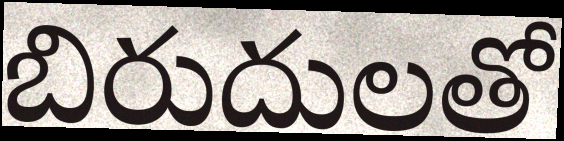
బిరుదులతో